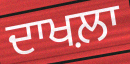
ਦਾਖਲ਼ਾ